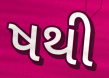
ષથી